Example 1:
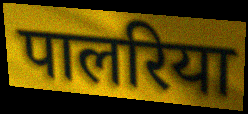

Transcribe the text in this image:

पालरिया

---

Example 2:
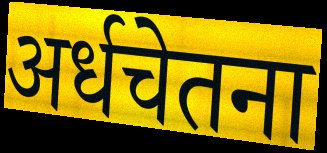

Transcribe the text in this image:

अर्धचेतना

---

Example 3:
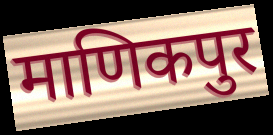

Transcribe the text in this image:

माणिकपुर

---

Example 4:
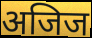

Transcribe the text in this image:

अजिज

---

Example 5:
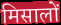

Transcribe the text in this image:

मिसालों